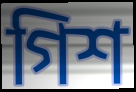
গিশ